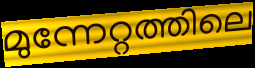
മുന്നേറ്റത്തിലെ